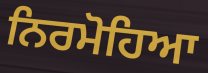
ਨਿਰਮੋਹਿਆ